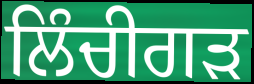
ਲਿੰਚੀਗੜ